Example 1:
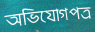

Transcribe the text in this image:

অভিযোগপত্র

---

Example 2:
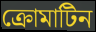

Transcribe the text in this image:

ক্রোমাটিন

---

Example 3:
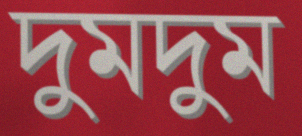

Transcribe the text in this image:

দুমদুম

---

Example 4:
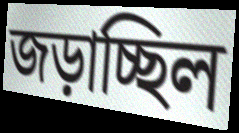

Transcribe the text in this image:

জড়াচ্ছিল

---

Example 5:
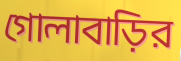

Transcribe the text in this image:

গোলাবাড়ির